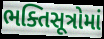
ભક્તિસૂત્રોમાં